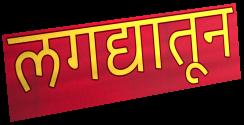
लगद्यातून